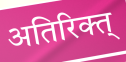
अतिरिक्त्